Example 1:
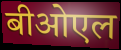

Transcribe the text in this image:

बीओएल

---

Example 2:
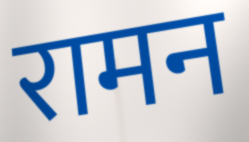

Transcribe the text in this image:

रामन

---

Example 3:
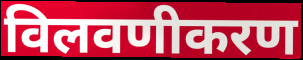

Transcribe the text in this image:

विलवणीकरण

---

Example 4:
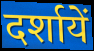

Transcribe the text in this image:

दर्शायें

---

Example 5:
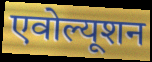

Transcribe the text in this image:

एवोल्यूशन